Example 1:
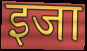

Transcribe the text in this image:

इजा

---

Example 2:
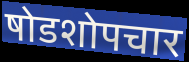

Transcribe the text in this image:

षोडशोपचार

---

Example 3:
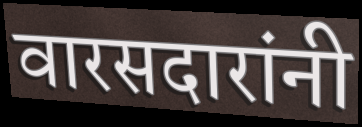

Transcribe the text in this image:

वारसदारांनी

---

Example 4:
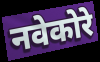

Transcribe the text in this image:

नवेकोरे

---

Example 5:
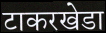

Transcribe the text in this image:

टाकरखेडा